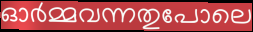
ഓർമ്മവന്നതുപോലെ